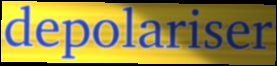
depolariser